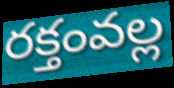
రక్తంవల్ల